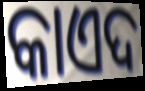
କାଏଦ